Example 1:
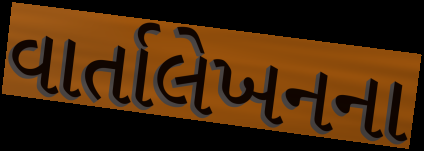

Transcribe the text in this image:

વાર્તાલેખનના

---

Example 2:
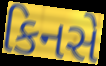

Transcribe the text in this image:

કિનસે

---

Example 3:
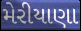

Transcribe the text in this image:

મેરીયાણા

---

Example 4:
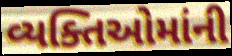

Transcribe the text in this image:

વ્યક્તિઓમાંની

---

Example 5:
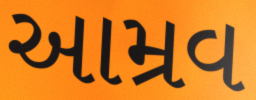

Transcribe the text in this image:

આમ્રવ